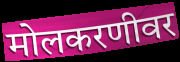
मोलकरणीवर